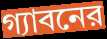
গ্যাবনের